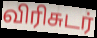
விரிசுடர்